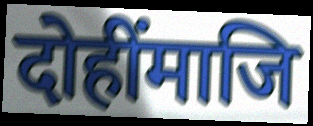
दोहींमाजि